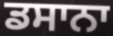
ਡਸਾਨਾ